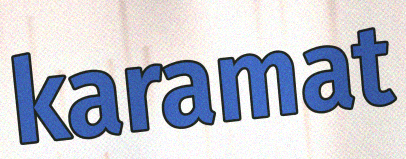
karamat